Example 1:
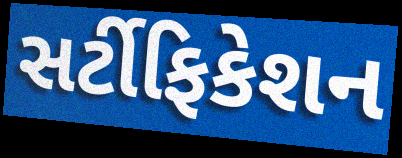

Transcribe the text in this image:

સર્ટીફિકેશન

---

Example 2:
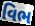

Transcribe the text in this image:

વિભ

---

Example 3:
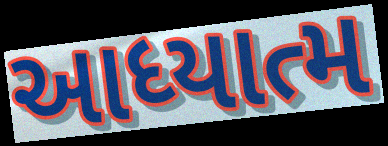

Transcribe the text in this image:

આધ્યાત્મ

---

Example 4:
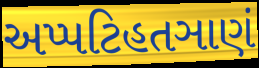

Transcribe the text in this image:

અપ્પટિહતઞાણં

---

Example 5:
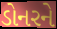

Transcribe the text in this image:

ડોનરને